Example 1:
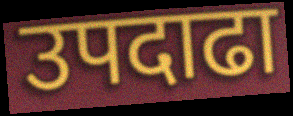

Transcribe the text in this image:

उपदाढा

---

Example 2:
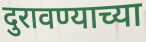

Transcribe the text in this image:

दुरावण्याच्या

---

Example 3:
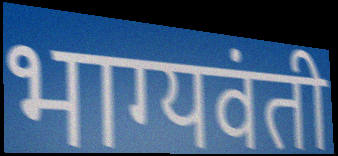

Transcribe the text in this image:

भाग्यवंती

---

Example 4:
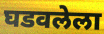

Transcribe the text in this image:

घडवलेला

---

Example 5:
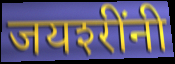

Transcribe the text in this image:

जयश्रींनी